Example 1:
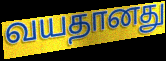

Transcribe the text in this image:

வயதானது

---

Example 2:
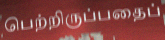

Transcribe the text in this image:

பெற்றிருப்பதைப்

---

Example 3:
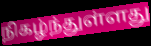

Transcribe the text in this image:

நிகழ்ந்துள்ளது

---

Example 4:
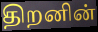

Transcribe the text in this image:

திறனின்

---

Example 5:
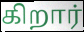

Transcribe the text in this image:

கிறார்